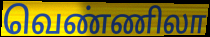
வெண்ணிலா